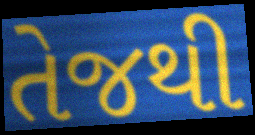
તેજથી